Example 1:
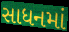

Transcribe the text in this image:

સાધનમાં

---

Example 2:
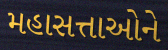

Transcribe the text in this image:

મહાસત્તાઓને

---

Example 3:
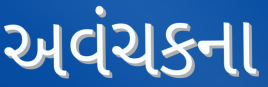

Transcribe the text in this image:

અવંચકના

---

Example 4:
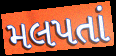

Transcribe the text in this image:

મલપતાં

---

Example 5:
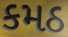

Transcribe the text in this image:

કમઠ